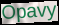
Opavy